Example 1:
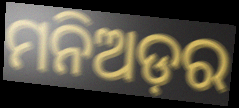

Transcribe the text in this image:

ମନିଅଡ଼ର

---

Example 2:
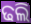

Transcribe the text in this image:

ଢଲି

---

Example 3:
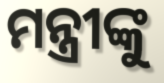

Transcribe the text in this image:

ମନ୍ତ୍ରୀଙ୍କୁ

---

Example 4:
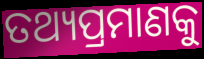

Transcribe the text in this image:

ତଥ୍ୟପ୍ରମାଣକୁ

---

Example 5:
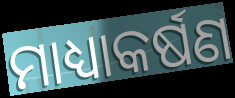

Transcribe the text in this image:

ମାଧ୍ୟାକର୍ଷଣ